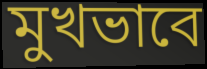
মুখভাবে